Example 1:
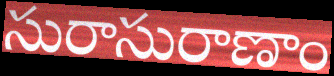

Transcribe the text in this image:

సురాసురాణాం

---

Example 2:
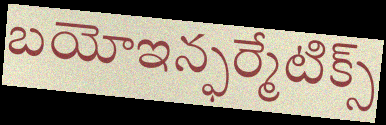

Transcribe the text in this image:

బయోఇన్ఫర్మేటిక్స్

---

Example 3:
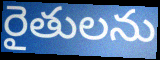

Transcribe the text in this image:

రైతులను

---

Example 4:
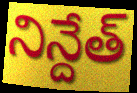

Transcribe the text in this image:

నిన్దేత్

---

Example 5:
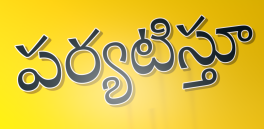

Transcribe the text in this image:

పర్యటిస్తూ